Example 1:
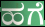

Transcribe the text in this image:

ಹಗೆ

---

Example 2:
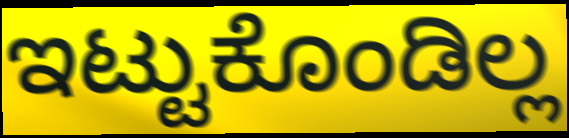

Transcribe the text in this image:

ಇಟ್ಟುಕೊಂಡಿಲ್ಲ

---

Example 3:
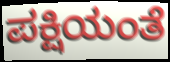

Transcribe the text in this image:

ಪಕ್ಷಿಯಂತೆ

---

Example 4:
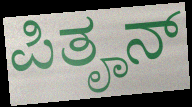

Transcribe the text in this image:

ಪಿತೄನ್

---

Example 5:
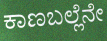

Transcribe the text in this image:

ಕಾಣಬಲ್ಲೆನೇ